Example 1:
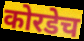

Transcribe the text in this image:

कोरडेच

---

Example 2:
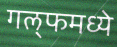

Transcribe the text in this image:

गल्फमध्ये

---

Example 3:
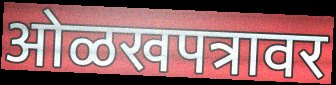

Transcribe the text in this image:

ओळखपत्रावर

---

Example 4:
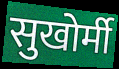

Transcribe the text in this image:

सुखोर्मी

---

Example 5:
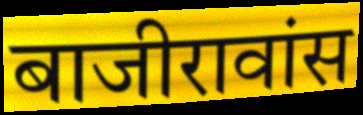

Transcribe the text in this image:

बाजीरावांस